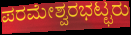
ಪರಮೇಶ್ವರಭಟ್ಟರು